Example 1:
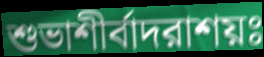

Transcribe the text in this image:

শুভাশীর্বাদরাশয়ঃ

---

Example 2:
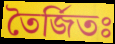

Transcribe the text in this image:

তৈর্জিতঃ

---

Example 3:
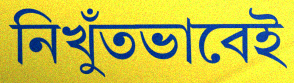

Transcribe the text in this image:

নিখুঁতভাবেই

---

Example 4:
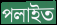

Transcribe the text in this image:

পলাইত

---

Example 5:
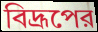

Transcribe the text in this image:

বিদ্রূপের